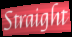
Straight